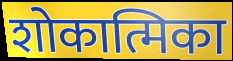
शोकात्मिका